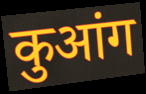
कुआंग